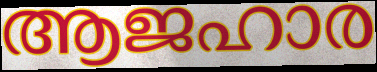
ആജഹാര